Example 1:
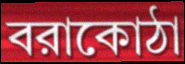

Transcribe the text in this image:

বরাকোঠা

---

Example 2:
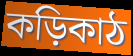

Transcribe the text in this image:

কড়িকাঠ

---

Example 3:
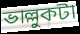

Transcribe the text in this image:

ভাল্লুকটা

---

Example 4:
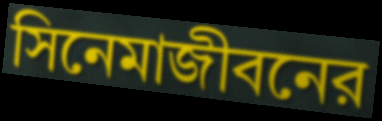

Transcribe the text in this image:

সিনেমাজীবনের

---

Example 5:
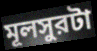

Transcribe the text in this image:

মূলসুরটা